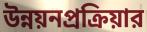
উন্নয়নপ্রক্রিয়ার